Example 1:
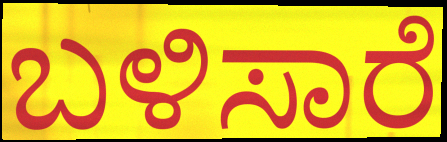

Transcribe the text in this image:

ಬಳಿಸಾರೆ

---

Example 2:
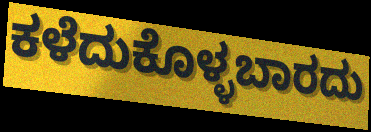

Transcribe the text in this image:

ಕಳೆದುಕೊಳ್ಳಬಾರದು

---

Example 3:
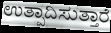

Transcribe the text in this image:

ಉತ್ಪಾದಿಸುತ್ತಾರೆ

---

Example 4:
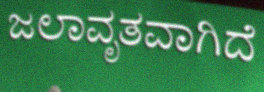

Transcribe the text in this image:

ಜಲಾವೃತವಾಗಿದೆ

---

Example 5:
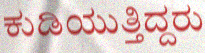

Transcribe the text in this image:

ಕುಡಿಯುತ್ತಿದ್ದರು